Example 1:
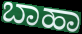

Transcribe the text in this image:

ಬಾಹಾ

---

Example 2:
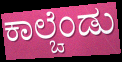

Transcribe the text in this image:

ಕಾಲ್ಚೆಂಡು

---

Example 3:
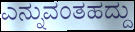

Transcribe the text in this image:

ಎನ್ನುವಂತಹದ್ದು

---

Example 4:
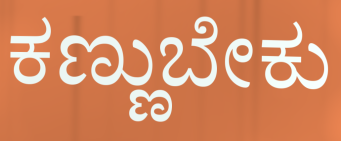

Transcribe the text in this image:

ಕಣ್ಣುಬೇಕು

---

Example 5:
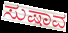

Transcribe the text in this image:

ಸುಷಾವ